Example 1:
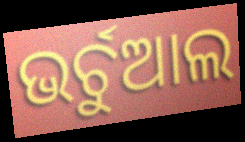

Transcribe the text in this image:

ଭର୍ଚୁଆଲ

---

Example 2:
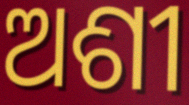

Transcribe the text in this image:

ଅଶୀ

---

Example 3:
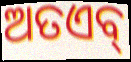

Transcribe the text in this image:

ଅତଏବ୍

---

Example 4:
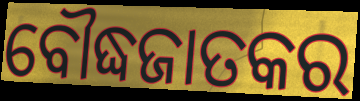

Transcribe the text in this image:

ବୌଦ୍ଧଜାତକର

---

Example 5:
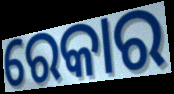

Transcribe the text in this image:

ରେକାର